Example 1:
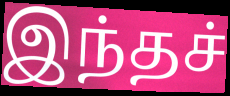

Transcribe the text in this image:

இந்தச்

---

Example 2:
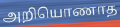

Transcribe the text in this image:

அறியொணாத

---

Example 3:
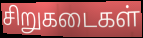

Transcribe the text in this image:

சிறுகடைகள்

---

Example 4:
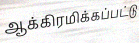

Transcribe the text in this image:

ஆக்கிரமிக்கப்பட்டு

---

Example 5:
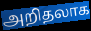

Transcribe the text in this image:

அறிதலாக